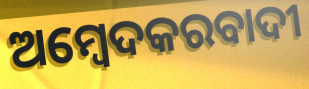
ଅମ୍ବେଦକରବାଦୀ